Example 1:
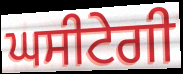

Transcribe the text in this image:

ਘਸੀਟੇਗੀ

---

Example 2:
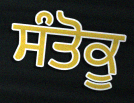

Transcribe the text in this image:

ਸੰਤੋਕੂ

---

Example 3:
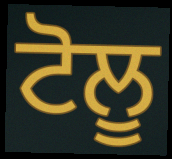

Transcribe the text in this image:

ਟੋਲੂ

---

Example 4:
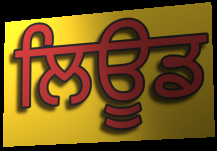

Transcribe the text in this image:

ਲਿਊਡ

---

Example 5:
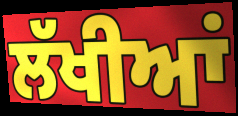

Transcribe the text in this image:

ਲੱਖੀਆਂ